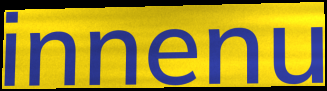
innenu